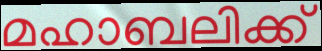
മഹാബലിക്ക്